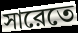
সারেতে